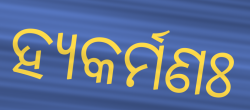
ହ୍ୟକର୍ମଣଃ